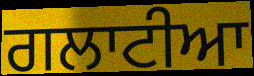
ਗਲਾਟੀਆ